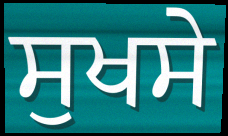
ਸੁਖਸੇ